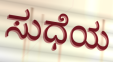
ಸುಧೆಯ